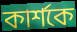
কার্শকে